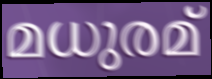
മധുരമ്